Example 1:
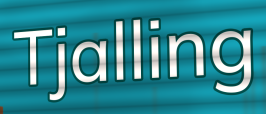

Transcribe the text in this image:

Tjalling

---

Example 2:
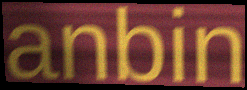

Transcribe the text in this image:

anbin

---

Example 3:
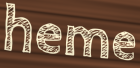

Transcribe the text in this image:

heme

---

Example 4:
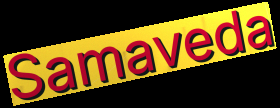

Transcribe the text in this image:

Samaveda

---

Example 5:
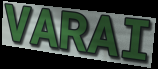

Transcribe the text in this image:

VARAI